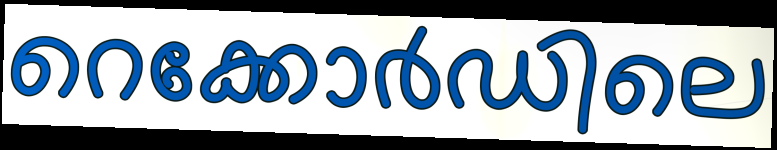
റെക്കോർഡിലെ